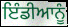
ਇੰਡੀਆਨੂੰ